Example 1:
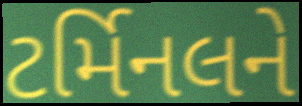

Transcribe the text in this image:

ટર્મિનલને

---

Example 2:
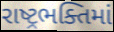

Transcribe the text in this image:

રાષ્ટ્રભક્તિમાં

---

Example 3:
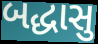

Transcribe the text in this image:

બદ્ધાસુ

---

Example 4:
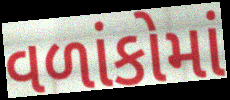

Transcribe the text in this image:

વળાંકોમાં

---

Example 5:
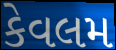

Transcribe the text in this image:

કેવલમ